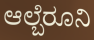
ಆಲ್ಬೆರೂನಿ